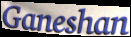
Ganeshan